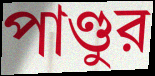
পাণ্ডুর